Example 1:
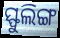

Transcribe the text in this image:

ସ୍ଫୁଲିଙ୍ଗ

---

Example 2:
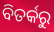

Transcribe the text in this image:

ବିତର୍କରୁ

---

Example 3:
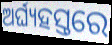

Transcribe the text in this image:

ଅର୍ଘ୍ୟହସ୍ତରେ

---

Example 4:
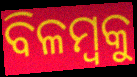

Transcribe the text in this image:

ବିଳମ୍ୱକୁ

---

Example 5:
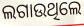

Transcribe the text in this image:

ଲଗାଉଥିଲେ